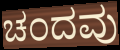
ಚಂದವು